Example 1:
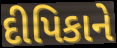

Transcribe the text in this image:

દીપિકાને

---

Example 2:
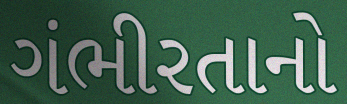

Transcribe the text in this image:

ગંભીરતાનો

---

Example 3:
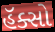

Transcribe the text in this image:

હૅક્સો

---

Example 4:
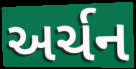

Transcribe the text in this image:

અર્ચન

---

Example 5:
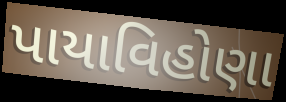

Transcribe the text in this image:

પાયાવિહોણા